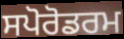
ਸਪੋਰੋਡਰਮ